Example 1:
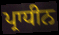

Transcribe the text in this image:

ਪ੍ਰਾਧੀਨ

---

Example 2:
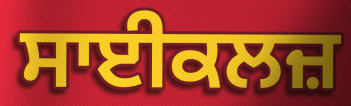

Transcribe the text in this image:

ਸਾਈਕਲਜ਼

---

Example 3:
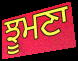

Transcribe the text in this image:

ਝੂਮਣਾ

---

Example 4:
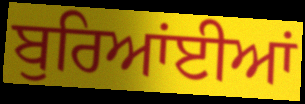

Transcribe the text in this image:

ਬੁਰਿਆਂਈਆਂ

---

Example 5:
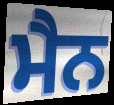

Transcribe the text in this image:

ਮੈਨ